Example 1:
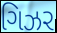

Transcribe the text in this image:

ગિઝર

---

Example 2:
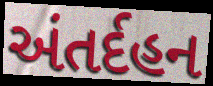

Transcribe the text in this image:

અંતર્દહન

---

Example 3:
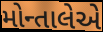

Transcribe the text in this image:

મોન્તાલેએ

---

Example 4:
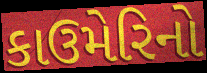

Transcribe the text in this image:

કાઉમેરિનો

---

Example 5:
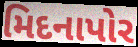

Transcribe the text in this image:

મિદનાપોર